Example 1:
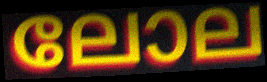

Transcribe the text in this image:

ലോല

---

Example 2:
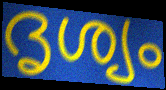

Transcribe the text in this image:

ദൃശ്യം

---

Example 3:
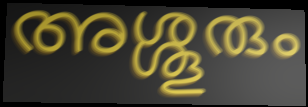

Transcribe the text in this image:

അശ്ശൂരും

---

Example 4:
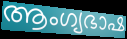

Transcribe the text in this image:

ആംഗ്യഭാഷ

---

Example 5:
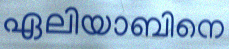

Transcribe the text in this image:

ഏലിയാബിനെ